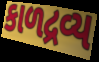
કાળદ્રવ્ય